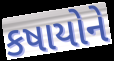
કષાયોને